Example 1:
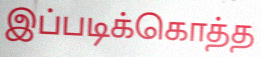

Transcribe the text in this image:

இப்படிக்கொத்த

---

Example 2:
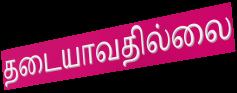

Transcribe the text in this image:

தடையாவதில்லை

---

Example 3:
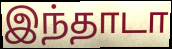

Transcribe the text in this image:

இந்தாடா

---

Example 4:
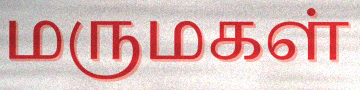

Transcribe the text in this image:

மருமகள்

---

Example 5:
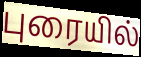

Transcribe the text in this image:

புரையில்